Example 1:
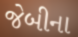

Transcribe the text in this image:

જેબીના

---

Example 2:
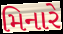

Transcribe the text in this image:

મિનારે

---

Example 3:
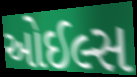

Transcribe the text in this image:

ઓઈલ્સ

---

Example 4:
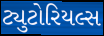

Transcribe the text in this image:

ટ્યુટોરિયલ્સ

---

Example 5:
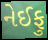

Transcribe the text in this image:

નેઈફુ